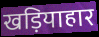
खड़ियाहार